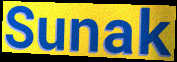
Sunak